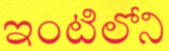
ఇంటిలోని